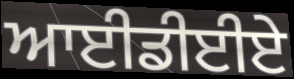
ਆਈਡੀਈਏ